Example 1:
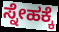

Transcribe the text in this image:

ಸ್ನೇಹಕ್ಕೆ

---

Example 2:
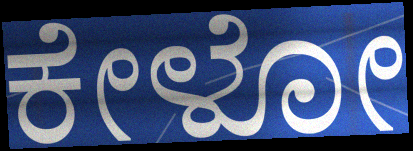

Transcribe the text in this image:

ಕೇಳೋ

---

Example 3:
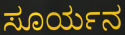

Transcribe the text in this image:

ಸೂರ್ಯನ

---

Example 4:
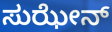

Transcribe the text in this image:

ಸುಝೇನ್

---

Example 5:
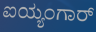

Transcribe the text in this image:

ಐಯ್ಯಂಗಾರ್